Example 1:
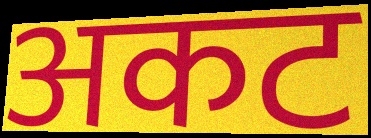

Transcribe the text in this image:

अकट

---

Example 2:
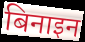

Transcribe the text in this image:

बिनाइन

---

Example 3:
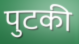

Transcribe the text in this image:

पुटकी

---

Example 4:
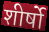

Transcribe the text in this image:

शीर्षो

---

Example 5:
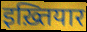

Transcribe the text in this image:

इख़्तियार